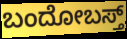
ಬಂದೋಬಸ್ತ್